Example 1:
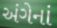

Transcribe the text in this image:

અંગેનાં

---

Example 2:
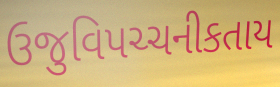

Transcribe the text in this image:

ઉજુવિપચ્ચનીકતાય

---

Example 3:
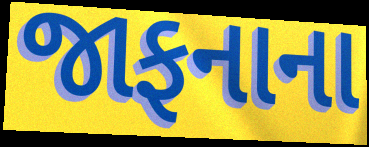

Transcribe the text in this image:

જાફનાના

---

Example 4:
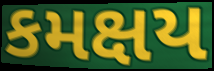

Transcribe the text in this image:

કમક્ષય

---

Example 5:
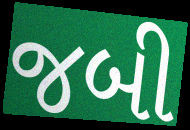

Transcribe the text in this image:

જબી